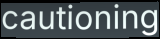
cautioning